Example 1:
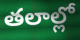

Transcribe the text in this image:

తలాల్లో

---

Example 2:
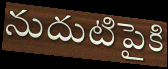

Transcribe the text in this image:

నుదుటిపైకి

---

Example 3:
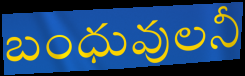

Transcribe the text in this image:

బంధువులనీ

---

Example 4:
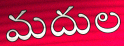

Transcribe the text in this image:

మదుల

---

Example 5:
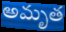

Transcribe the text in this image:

అమృత